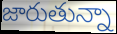
జారుతున్నా